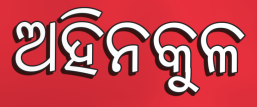
ଅହିନକୁଳ